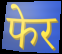
फेर